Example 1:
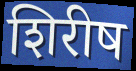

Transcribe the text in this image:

शिरीष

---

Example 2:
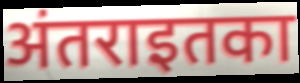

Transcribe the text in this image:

अंतराइतका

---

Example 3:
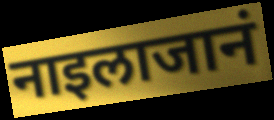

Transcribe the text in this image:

नाइलाजानं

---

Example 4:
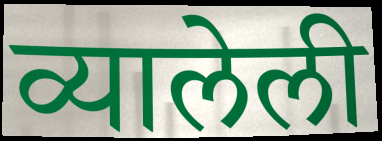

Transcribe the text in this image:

व्यालेली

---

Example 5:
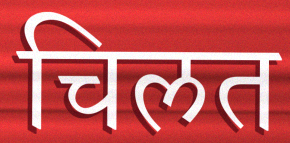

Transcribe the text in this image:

चिलत